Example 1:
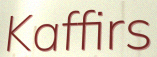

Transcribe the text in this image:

Kaffirs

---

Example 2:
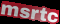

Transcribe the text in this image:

msrtc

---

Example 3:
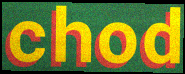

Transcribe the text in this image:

chod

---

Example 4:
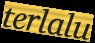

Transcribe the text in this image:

terlalu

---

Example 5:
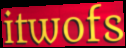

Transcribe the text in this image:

itwofs